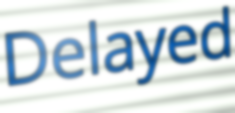
Delayed